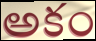
అకం